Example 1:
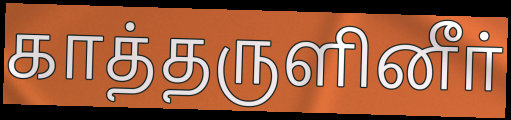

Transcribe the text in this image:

காத்தருளினீர்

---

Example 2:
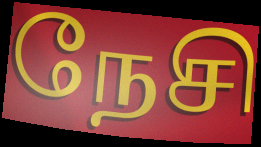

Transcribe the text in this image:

நேசி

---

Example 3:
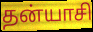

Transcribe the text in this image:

தன்யாசி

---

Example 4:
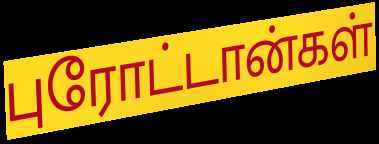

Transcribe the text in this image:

புரோட்டான்கள்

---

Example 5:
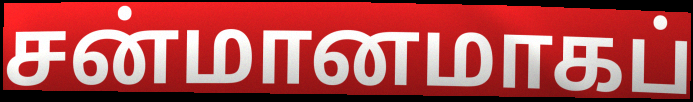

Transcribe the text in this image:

சன்மானமாகப்